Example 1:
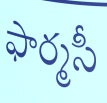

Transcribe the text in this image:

ఫార్మసీ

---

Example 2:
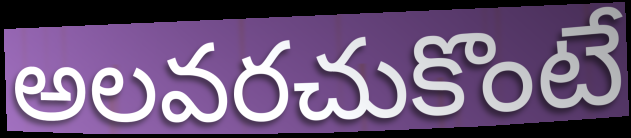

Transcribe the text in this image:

అలవరచుకొంటే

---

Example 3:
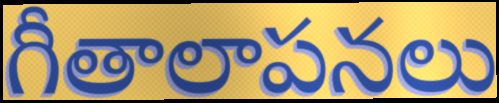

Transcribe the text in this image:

గీతాలాపనలు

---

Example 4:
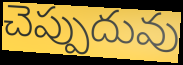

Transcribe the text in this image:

చెప్పుదువు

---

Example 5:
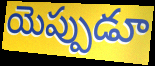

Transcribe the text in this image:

యెప్పుడూ